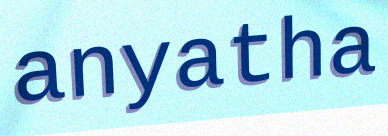
anyatha